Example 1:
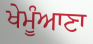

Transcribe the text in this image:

ਖੇਮੂੰਆਣਾ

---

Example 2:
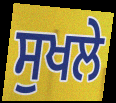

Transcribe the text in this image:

ਸੁਖਲੇ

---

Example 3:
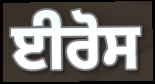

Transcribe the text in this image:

ਈਰੋਸ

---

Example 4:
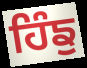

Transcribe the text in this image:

ਹਿੰਙੁ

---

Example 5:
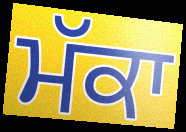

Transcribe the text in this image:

ਮੱਕਾ